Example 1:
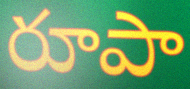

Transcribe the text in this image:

రూపా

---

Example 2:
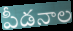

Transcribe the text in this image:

పీడనాల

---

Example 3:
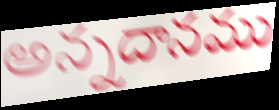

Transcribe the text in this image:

అన్నదానము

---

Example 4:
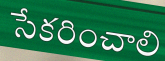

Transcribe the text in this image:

సేకరించాలి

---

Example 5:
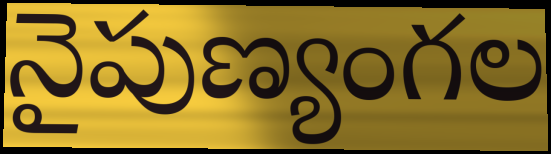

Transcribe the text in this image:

నైపుణ్యంగల